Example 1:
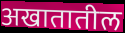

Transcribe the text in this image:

अखातातील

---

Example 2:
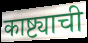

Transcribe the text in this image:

काष्ट्याची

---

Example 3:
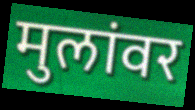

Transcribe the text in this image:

मुलांवर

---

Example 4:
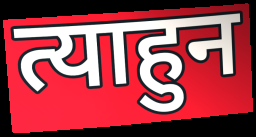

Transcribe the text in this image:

त्याहुन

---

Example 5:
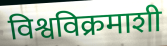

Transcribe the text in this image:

विश्वविक्रमाशी